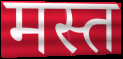
मस्त